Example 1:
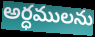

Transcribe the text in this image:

అర్ధములను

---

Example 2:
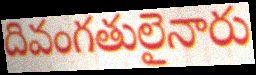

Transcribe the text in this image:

దివంగతులైనారు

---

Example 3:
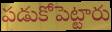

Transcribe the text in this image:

పడుకోపెట్టారు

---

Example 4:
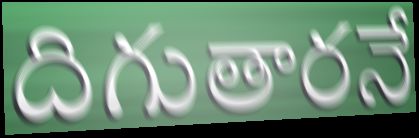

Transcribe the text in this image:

దిగుతారనే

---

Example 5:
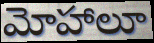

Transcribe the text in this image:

మోహాలూ